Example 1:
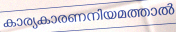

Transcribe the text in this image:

കാര്യകാരണനിയമത്താൽ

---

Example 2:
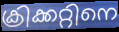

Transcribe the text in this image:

ക്രിക്കറ്റിനെ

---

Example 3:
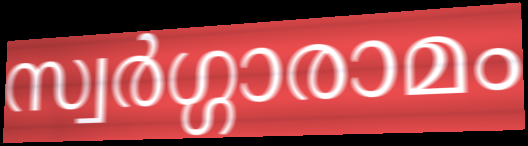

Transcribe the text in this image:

സ്വർഗ്ഗാരാമം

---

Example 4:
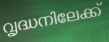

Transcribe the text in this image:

വൃദ്ധനിലേക്ക്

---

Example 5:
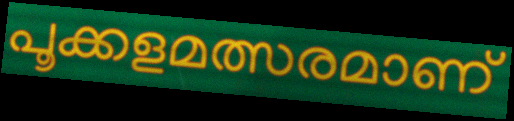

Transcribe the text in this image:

പൂക്കളമത്സരമാണ്